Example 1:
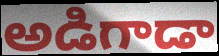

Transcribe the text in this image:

అడిగాడా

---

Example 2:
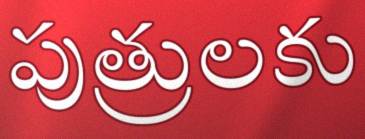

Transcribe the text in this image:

పుత్రులకు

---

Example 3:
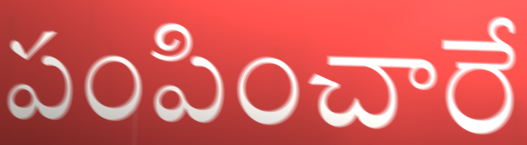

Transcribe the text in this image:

పంపించారే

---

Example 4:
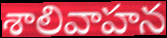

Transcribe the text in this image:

శాలివాహన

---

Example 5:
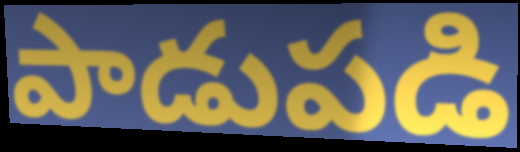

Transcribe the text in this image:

పాడుపడి